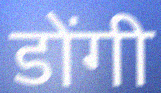
डोंगी